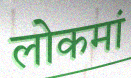
लोकमां